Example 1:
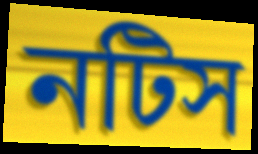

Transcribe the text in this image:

নটিস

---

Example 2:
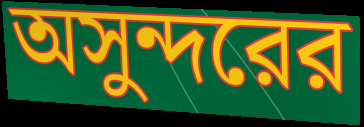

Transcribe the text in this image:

অসুন্দরের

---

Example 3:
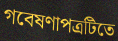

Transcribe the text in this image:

গবেষণাপত্রটিতে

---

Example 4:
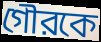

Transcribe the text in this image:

গৌরকে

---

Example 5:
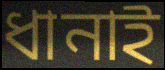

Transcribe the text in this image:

ধানাই